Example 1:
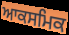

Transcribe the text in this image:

ਆਕਸਮਿਕ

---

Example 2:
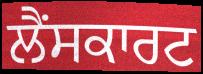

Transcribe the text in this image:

ਲੈਂਸਕਾਰਟ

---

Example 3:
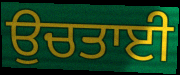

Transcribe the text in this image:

ਉਚਤਾਈ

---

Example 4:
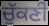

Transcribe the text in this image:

ਚੁੱਕਣੀ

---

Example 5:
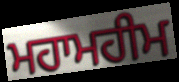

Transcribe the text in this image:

ਮਹਾਮਹੀਮ